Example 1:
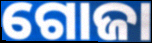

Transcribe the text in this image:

ଗୋଜା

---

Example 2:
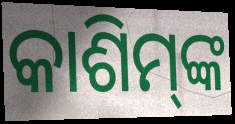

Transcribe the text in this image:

କାଶିମ୍‍ଙ୍କ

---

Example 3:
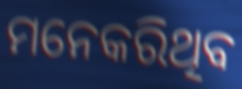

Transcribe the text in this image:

ମନେକରିଥିବ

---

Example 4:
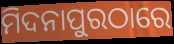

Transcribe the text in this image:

ମିଦନାପୁରଠାରେ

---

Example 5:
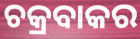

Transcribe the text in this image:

ଚକ୍ରବାକର